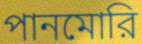
পানমোরি